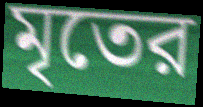
মৃতের